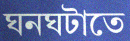
ঘনঘটাতে